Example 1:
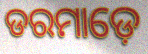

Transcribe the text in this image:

ଡରମାଡ଼େ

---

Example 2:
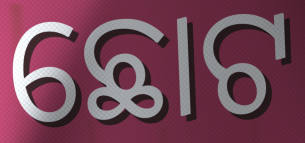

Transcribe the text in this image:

ଛୋଟ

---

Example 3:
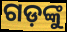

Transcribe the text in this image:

ଗଡ଼ଙ୍କୁ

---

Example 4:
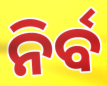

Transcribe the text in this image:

ନିର୍ବ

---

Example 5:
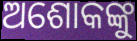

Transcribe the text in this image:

ଅଶୋକଙ୍କୁ